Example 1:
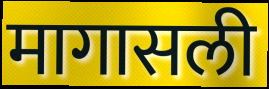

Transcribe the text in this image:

मागासली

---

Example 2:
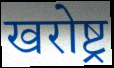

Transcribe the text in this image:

खरोष्ट्र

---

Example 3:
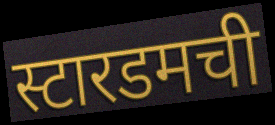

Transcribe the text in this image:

स्टारडमची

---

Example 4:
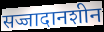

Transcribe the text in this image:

सज्जादानशीन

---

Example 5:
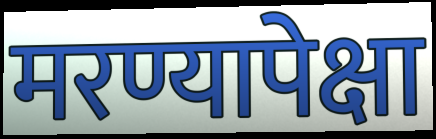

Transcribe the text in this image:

मरण्यापेक्षा